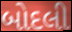
બોદલી